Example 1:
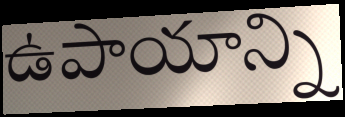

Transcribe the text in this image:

ఉపాయాన్ని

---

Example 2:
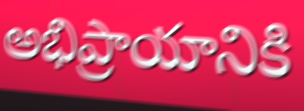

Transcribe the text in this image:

అభిప్రాయానికి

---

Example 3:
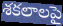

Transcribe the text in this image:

శకలాలపై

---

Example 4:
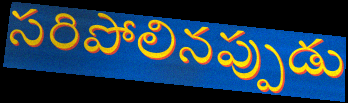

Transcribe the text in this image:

సరిపోలినప్పుడు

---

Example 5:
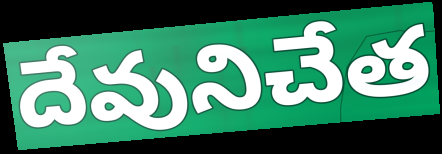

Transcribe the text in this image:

దేవునిచేత